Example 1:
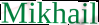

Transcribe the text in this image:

Mikhail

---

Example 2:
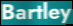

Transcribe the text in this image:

Bartley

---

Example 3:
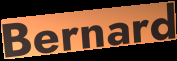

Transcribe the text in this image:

Bernard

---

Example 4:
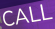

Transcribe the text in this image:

CALL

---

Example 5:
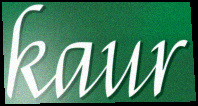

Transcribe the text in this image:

kaur